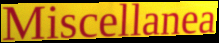
Miscellanea